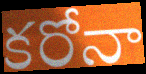
కరోనా